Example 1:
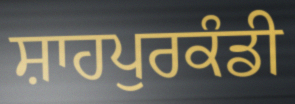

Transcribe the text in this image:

ਸ਼ਾਹਪੁਰਕੰਡੀ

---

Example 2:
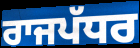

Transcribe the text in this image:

ਰਾਜਪੱਧਰ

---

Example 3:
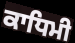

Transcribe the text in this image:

ਕਾਧਿਮੀ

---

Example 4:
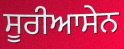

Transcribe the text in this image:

ਸੂਰੀਆਸੇਨ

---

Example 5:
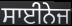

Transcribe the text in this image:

ਸਾਈਨੇਜ